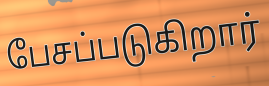
பேசப்படுகிறார்